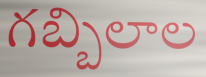
గబ్బిలాల